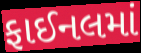
ફાઈનલમાં